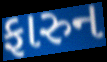
ફારુન